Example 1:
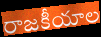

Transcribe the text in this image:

రాజకీయాల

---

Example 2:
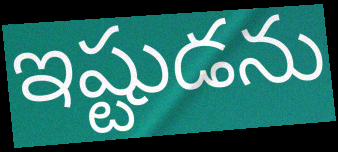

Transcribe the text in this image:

ఇష్టుడను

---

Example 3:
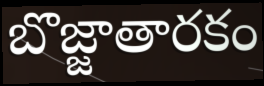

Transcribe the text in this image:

బొజ్జాతారకం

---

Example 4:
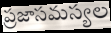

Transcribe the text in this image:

ప్రజాసమస్యల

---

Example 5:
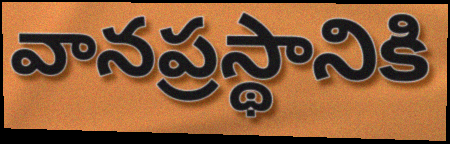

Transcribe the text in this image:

వానప్రస్థానికి